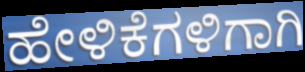
ಹೇಳಿಕೆಗಳಿಗಾಗಿ